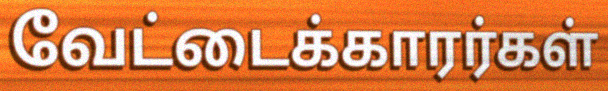
வேட்டைக்காரர்கள்